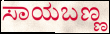
ಸಾಯಬಣ್ಣ